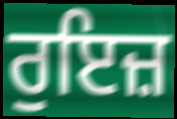
ਰੁਇਜ਼